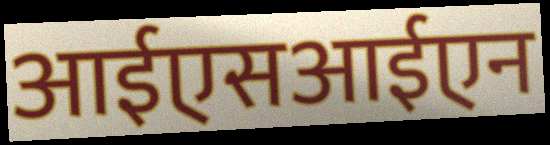
आईएसआईएन